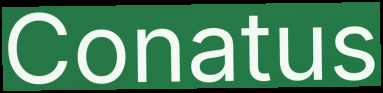
Conatus